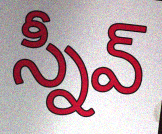
స్నీవ్